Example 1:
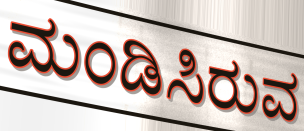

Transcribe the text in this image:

ಮಂಡಿಸಿರುವ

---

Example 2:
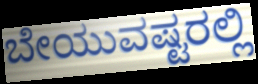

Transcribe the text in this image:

ಬೇಯುವಷ್ಟರಲ್ಲಿ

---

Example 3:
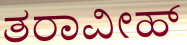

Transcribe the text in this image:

ತರಾವೀಹ್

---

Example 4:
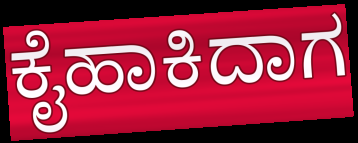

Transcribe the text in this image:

ಕೈಹಾಕಿದಾಗ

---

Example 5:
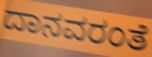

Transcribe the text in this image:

ದಾನವರಂತೆ